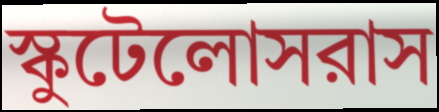
স্কুটেলোসরাস